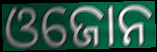
ଓଜୋନ